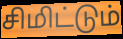
சிமிட்டும்